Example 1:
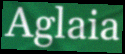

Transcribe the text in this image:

Aglaia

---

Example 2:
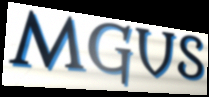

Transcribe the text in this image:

MGUS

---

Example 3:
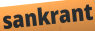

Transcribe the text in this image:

sankrant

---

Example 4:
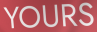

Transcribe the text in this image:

YOURS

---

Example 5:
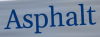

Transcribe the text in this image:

Asphalt